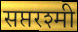
सप्तरश्मी